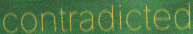
contradicted